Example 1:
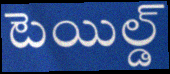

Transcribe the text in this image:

టెయిల్డ్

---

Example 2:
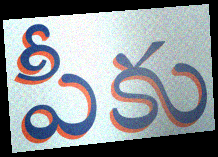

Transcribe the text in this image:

పీకు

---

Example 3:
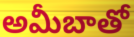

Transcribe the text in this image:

అమీబాతో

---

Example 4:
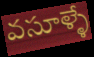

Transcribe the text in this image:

వసూళ్ళే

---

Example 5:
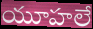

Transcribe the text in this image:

యూహలే